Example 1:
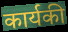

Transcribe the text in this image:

कार्यकी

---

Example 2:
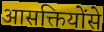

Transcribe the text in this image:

आसक्तियोंसे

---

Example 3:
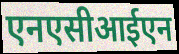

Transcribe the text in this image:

एनएसीआईएन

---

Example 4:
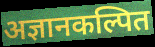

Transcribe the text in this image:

अज्ञानकल्पित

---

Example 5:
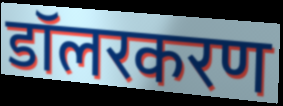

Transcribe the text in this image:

डॉलरकरण